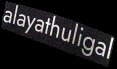
alayathuligal